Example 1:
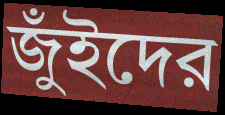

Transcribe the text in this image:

জুঁইদের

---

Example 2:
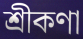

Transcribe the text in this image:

শ্রীকণা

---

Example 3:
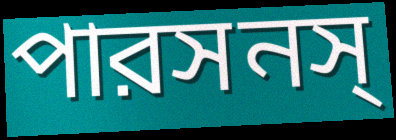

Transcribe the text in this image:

পারসনস্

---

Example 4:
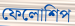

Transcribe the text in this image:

ফেলোশিপ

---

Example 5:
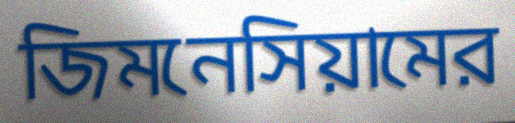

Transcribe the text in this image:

জিমনেসিয়ামের